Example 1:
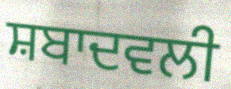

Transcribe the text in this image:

ਸ਼ਬਾਦਵਲੀ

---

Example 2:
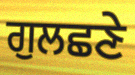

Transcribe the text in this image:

ਗੁਲਛਣੇ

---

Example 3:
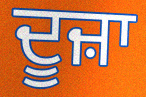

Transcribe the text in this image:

ਦੂਜ਼ਾ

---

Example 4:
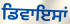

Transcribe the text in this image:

ਡਿਵਾਇਸਾਂ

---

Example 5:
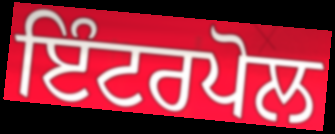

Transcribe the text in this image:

ਇੰਟਰਪੋਲ